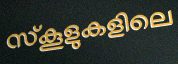
സ്കൂളുകളിലെ